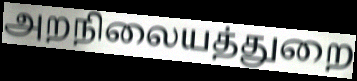
அறநிலையத்துறை